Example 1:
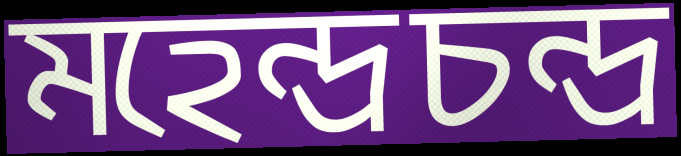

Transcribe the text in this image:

মহেন্দ্রচন্দ্র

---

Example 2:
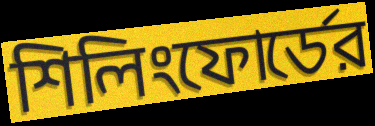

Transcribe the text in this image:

শিলিংফোর্ডের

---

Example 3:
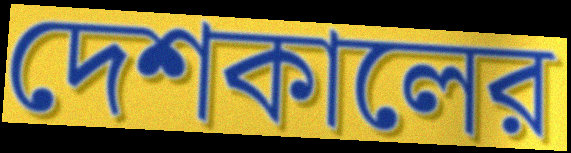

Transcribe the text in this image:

দেশকালের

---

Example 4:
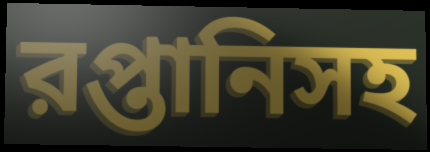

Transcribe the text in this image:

রপ্তানিসহ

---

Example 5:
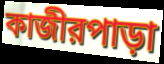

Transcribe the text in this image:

কাজীরপাড়া